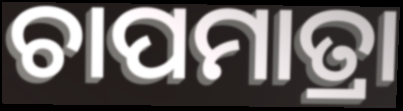
ଚାପମାତ୍ରା